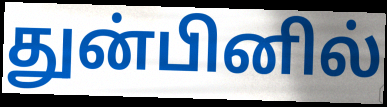
துன்பினில்